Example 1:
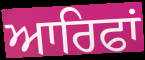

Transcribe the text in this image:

ਆਰਿਫਾਂ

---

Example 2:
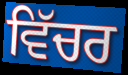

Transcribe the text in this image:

ਵਿੱਚਰ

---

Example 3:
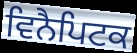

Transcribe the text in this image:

ਵਿਨੈਪਿਟਕ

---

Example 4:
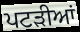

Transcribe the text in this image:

ਪਟਡ਼ੀਆਂ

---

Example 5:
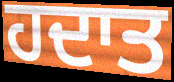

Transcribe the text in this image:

ਹਦਾਤ